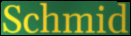
Schmid